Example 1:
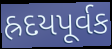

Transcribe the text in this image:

હ્રદયપૂર્વક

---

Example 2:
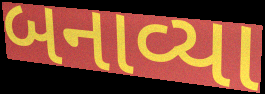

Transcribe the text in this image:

બનાવ્યા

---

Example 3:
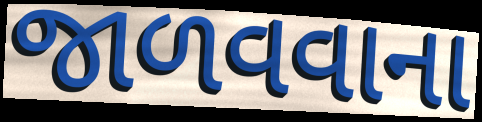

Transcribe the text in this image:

જાળવવાના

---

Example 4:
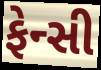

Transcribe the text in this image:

ફેન્સી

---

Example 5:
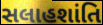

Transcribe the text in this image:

સલાહશાંતિ